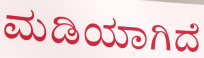
ಮಡಿಯಾಗಿದೆ